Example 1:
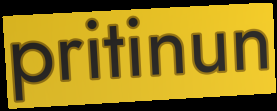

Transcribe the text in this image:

pritinun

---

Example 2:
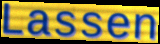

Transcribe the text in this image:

Lassen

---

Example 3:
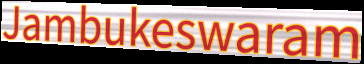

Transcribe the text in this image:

Jambukeswaram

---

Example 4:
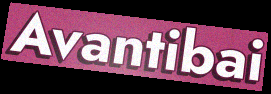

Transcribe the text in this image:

Avantibai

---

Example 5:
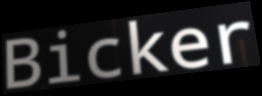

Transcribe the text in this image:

Bicker